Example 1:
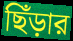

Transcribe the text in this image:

ছিঁড়ার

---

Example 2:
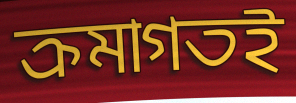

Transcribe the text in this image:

ক্রমাগতই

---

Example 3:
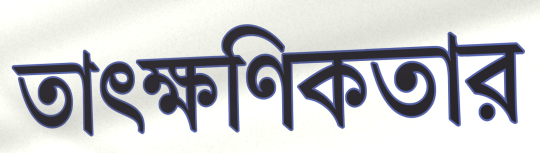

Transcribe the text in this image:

তাৎক্ষণিকতার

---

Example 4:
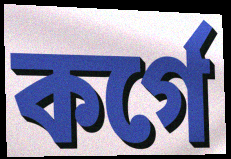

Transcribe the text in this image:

কর্গে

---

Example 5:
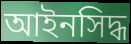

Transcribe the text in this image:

আইনসিদ্ধ